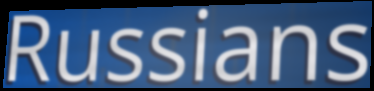
Russians